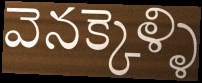
వెనక్కెళ్ళి